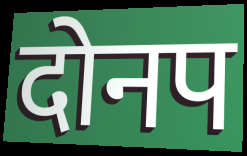
दोनप